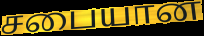
சபையான